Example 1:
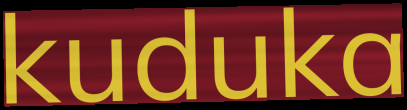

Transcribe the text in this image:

kuduka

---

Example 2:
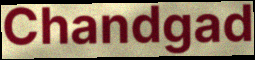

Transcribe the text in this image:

Chandgad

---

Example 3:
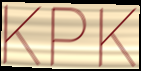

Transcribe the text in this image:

KPK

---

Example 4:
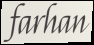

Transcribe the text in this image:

farhan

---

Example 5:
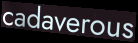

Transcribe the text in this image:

cadaverous